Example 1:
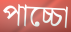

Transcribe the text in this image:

পাচ্চো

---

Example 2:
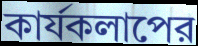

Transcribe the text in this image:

কার্যকলাপের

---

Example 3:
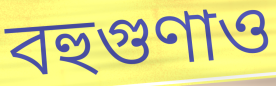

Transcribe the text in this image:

বহুগুণাও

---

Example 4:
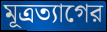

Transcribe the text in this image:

মূত্রত্যাগের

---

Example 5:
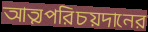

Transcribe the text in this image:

আত্মপরিচয়দানের